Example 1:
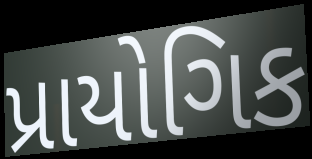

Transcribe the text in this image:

પ્રાયોગિક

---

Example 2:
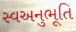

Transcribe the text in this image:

સ્વઅનુભૂતિ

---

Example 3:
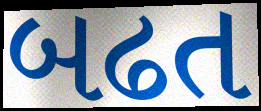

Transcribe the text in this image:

બઢત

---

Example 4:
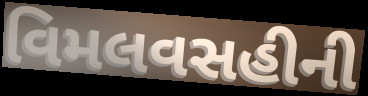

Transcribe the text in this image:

વિમલવસહીની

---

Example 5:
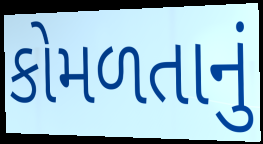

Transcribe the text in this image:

કોમળતાનું